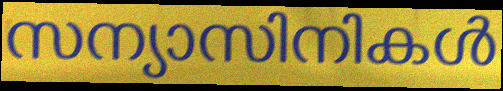
സന്യാസിനികൾ